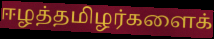
ஈழத்தமிழர்களைக்